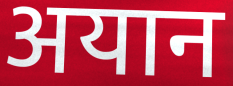
अयान